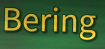
Bering